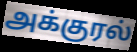
அக்குரல்